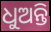
ଧୁଅନ୍ତି